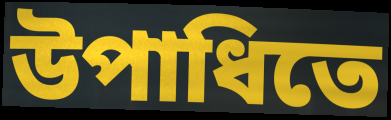
উপাধিতে